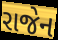
રાજેન